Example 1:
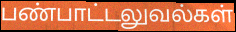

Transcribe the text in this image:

பண்பாட்டலுவல்கள்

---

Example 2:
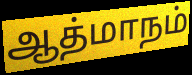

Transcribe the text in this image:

ஆத்மாநம்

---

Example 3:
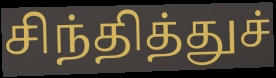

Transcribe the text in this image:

சிந்தித்துச்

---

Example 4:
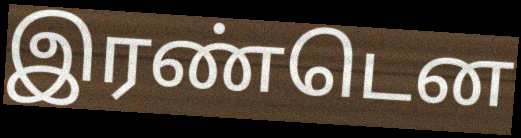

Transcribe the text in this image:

இரண்டென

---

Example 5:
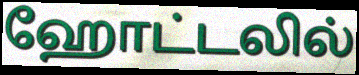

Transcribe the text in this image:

ஹோட்டலில்